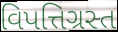
વિપત્તિગ્રસ્ત